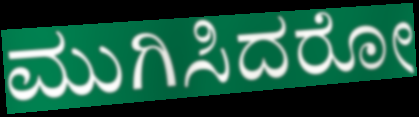
ಮುಗಿಸಿದರೋ